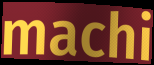
machi